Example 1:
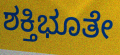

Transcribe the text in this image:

ಶಕ್ತಿಭೂತೇ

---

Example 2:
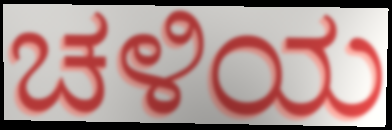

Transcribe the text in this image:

ಚಳಿಯ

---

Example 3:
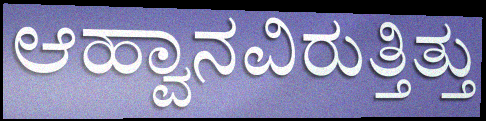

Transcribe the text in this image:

ಆಹ್ವಾನವಿರುತ್ತಿತ್ತು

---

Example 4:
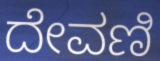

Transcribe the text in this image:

ದೇವಣಿ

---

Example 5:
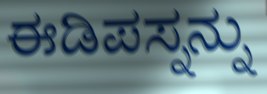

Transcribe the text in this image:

ಈಡಿಪಸ್ನನ್ನು